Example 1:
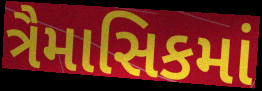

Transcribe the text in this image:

ત્રૈમાસિકમાં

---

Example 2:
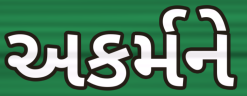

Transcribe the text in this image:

અકર્મને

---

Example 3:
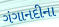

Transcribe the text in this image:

ગંગાનદીના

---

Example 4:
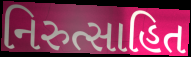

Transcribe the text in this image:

નિરુત્સાહિત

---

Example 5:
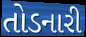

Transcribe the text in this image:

તોડનારી